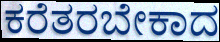
ಕರೆತರಬೇಕಾದ